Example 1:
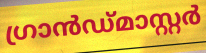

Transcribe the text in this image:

ഗ്രാൻഡ്മാസ്റ്റർ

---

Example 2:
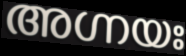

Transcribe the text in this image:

അഗ്നയഃ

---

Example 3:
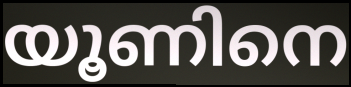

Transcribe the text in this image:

യൂണിനെ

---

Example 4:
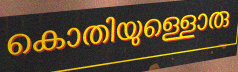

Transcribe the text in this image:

കൊതിയുള്ളൊരു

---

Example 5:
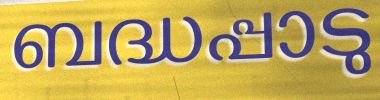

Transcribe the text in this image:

ബദ്ധപ്പാടു